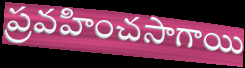
ప్రవహించసాగాయి